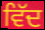
ਵਿੱਦ